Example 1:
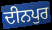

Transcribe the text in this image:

ਦੀਨਪੁਰ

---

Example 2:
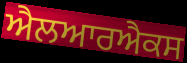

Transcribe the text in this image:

ਐਲਆਰਐਕਸ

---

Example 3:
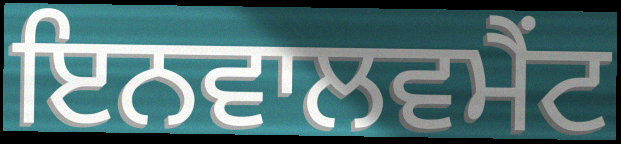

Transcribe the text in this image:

ਇਨਵਾਲਵਮੈਂਟ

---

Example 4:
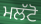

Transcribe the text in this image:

ਮਲੱਟੋ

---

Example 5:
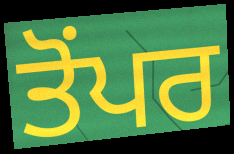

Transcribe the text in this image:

ਤੋਂਪਰ